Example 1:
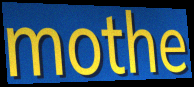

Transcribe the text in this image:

mothe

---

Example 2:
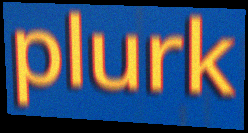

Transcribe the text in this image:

plurk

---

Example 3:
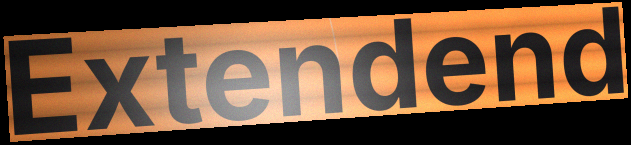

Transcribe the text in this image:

Extendend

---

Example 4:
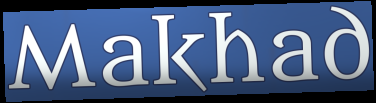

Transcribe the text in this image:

Makhad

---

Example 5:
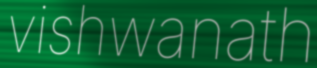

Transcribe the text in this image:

vishwanath